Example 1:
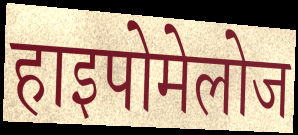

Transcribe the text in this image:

हाइपोमेलोज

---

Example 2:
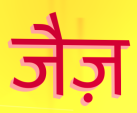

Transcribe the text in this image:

जैज़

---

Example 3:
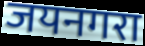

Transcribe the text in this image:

जयनगरा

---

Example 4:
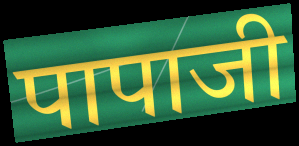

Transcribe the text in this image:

पापाजी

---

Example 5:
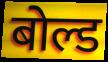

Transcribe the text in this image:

बोल्ड